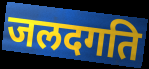
जलदगति